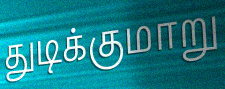
துடிக்குமாறு